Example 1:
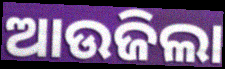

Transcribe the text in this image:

ଆଉଜିଲା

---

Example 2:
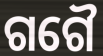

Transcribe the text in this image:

ଗଗୈ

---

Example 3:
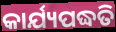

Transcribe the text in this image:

କାର୍ଯ୍ୟପଦ୍ଧତି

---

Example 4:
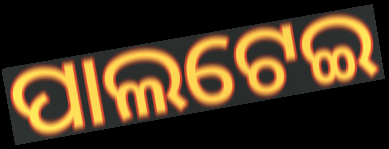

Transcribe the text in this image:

ପାଲଟେଇ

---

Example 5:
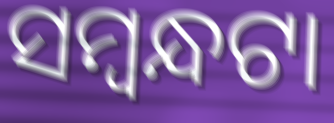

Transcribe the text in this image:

ସମ୍ବନ୍ଧଟା